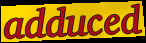
adduced